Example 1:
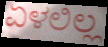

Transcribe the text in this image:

ಏಳಲಿಲ್ಲ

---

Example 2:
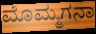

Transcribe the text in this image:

ಮೊಮ್ಮಗನಾ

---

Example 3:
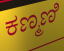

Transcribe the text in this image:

ಕಣ್ಮಣಿ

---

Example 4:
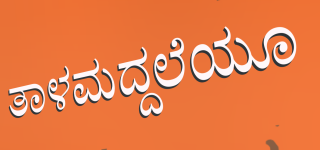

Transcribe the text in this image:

ತಾಳಮದ್ದಲೆಯೂ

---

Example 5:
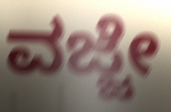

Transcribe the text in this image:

ವಜ್ಜೇ